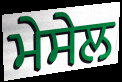
ਮੇਸੇਲ